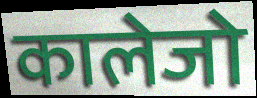
कालेजो